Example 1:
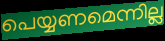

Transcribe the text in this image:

പെയ്യണമെന്നില്ല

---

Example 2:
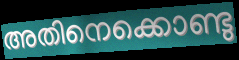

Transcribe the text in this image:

അതിനെക്കൊണ്ടു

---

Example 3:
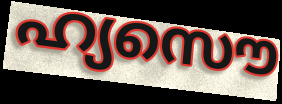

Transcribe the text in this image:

ഹ്യസൌ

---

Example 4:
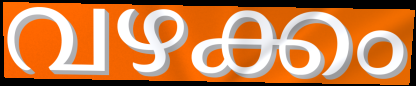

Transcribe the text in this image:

വഴക്കം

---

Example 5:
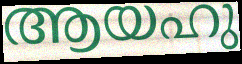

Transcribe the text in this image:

ആയഹു